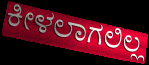
ಕೀಳಲಾಗಲಿಲ್ಲ